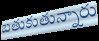
బతుకుతున్నారు